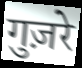
गुज़रे